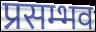
प्रसम्भव